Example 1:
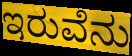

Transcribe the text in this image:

ಇರುವೆನು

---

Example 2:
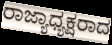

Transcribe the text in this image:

ರಾಜ್ಯಾಧ್ಯಕ್ಷರಾದ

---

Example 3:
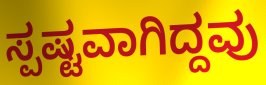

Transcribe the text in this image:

ಸ್ಪಷ್ಟವಾಗಿದ್ದವು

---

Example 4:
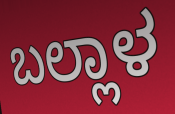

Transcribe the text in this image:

ಬಲ್ಲಾಳ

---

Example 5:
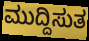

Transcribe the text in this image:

ಮುದ್ದಿಸುತ